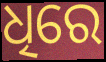
ଧିରେ